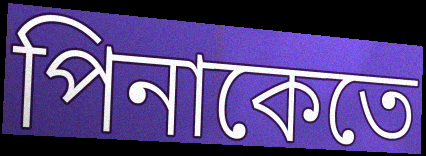
পিনাকেতে